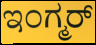
ಇಂಗ್ಮರ್